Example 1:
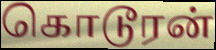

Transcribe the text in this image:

கொடூரன்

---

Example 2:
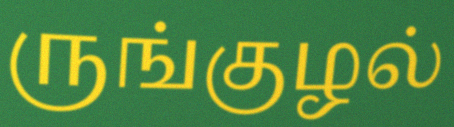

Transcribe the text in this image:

ருங்குழல்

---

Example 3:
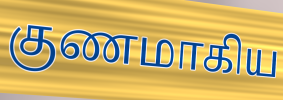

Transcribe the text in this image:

குணமாகிய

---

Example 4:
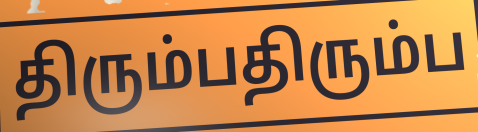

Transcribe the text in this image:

திரும்பதிரும்ப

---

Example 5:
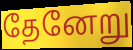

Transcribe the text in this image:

தேனேறு